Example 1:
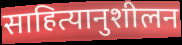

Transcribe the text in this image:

साहित्यानुशीलन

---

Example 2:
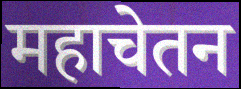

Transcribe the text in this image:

महाचेतन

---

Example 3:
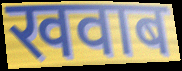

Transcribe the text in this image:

खवाब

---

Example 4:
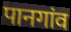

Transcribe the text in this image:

पानगांव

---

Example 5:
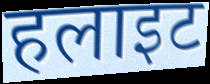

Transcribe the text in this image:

हलाइट